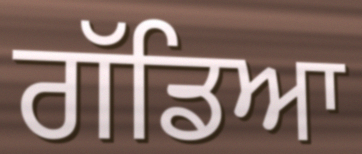
ਗੱਡਿਆ